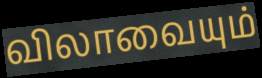
விலாவையும்